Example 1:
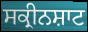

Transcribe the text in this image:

ਸਕ੍ਰੀਨਸ਼ਾਟ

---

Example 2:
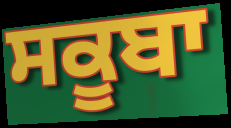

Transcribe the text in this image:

ਸਕੂਬਾ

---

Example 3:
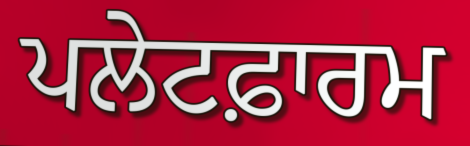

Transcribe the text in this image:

ਪਲੇਟਫ਼ਾਰਮ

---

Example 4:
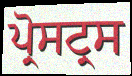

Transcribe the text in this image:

ਪ੍ਰੋਸਟ੍ਰਸ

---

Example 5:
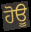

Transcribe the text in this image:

ਹੋਊ